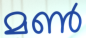
മൺ